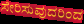
ಸೇರಿಸುವುದರಿಂದ